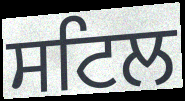
ਸਟਿਲ